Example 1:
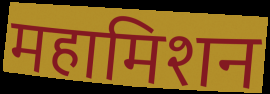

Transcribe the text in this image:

महामिशन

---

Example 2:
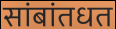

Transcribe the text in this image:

सांबांतधत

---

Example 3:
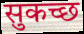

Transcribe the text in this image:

सुकच्छ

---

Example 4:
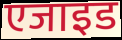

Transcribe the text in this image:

एजाइड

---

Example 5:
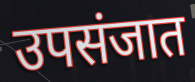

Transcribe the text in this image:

उपसंजात